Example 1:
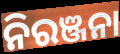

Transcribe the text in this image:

ନିରଞ୍ଜନା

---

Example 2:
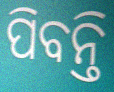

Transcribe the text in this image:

ପିବନ୍ତି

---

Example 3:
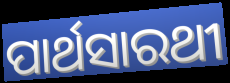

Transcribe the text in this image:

ପାର୍ଥସାରଥୀ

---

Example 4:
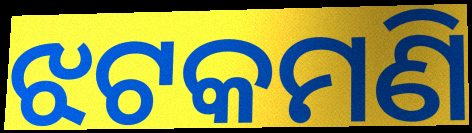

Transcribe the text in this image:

ଝଟକମଣି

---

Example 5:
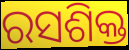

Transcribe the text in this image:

ରସଶିକ୍ତ